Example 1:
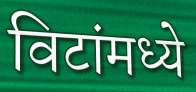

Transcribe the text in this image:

विटांमध्ये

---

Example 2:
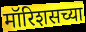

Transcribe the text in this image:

मॉरिशसच्या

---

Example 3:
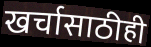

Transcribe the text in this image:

खर्चासाठीही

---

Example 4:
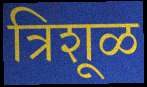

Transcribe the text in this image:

त्रिशूळ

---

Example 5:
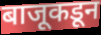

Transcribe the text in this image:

बाजूकडून